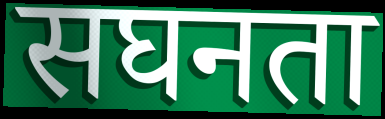
सघनता